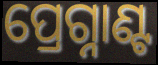
ପ୍ରେଗ୍ନାଣ୍ଟ